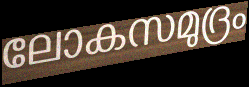
ലോകസമുദ്രം